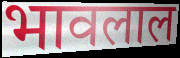
भावलाल